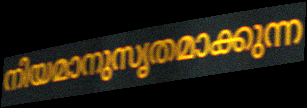
നിയമാനുസൃതമാക്കുന്ന